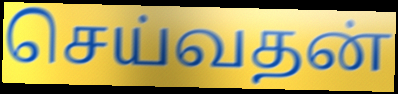
செய்வதன்